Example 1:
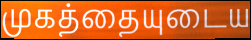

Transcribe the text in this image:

முகத்தையுடைய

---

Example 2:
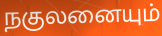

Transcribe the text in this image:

நகுலனையும்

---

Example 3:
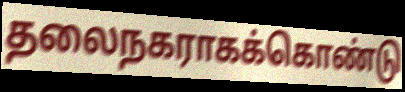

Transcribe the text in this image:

தலைநகராகக்கொண்டு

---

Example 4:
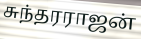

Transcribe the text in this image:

சுந்தரராஜன்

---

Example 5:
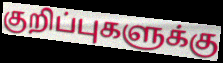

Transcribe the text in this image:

குறிப்புகளுக்கு